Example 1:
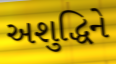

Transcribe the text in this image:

અશુદ્ધિને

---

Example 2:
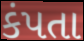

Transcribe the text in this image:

કંપતા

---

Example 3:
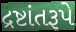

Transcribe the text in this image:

દ્રષ્ટાંતરૂપે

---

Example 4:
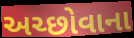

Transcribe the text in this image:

અચ્છોવાના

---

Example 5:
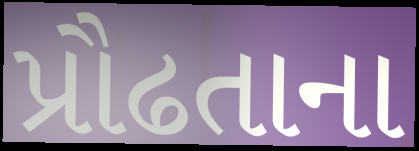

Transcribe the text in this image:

પ્રૌઢતાના